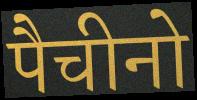
पैचीनो